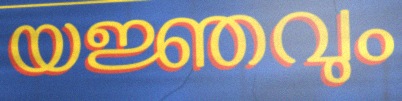
യജ്ഞവും